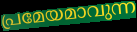
പ്രമേയമാവുന്ന